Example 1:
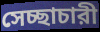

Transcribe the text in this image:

সেচ্ছাচারী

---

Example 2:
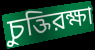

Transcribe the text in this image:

চুক্তিরক্ষা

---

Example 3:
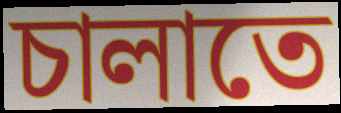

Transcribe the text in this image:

চালাতে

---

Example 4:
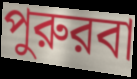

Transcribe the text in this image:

পুরুরবা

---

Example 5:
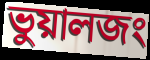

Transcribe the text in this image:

ভুয়ালজং